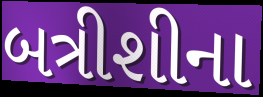
બત્રીશીના